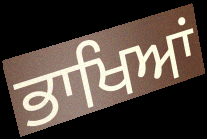
ਭਾਖਿਆਂ